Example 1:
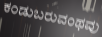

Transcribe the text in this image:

ಕಂಡುಬರುವಂಥವು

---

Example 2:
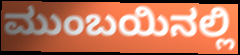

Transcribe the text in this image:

ಮುಂಬಯಿನಲ್ಲಿ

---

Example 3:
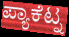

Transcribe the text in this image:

ಪ್ಯಾಕೆಟ್ನ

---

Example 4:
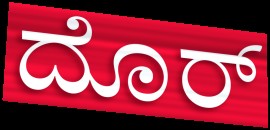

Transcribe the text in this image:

ದೊರ್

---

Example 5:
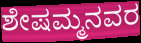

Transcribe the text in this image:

ಶೇಷಮ್ಮನವರ